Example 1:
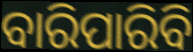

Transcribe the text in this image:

ବାରିପାରିବି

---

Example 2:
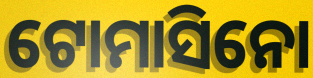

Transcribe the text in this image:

ଟୋମାସିନୋ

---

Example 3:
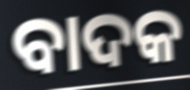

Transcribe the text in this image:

ବାଦକ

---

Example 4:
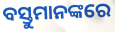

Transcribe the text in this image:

ବସ୍ତୁମାନଙ୍କରେ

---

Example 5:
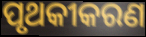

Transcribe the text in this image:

ପୃଥକୀକରଣ